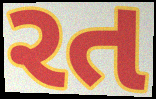
રત